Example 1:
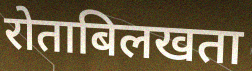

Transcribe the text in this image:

रोताबिलखता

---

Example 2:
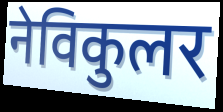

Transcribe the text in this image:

नेविकुलर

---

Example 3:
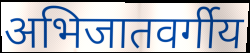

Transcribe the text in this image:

अभिजातवर्गीय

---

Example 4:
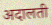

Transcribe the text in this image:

अदालती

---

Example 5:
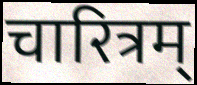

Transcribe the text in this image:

चारित्रम्